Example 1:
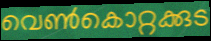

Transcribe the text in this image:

വെൺകൊറ്റക്കുട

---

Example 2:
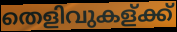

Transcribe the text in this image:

തെളിവുകള്ക്ക്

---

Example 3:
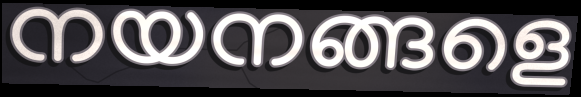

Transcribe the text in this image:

നയനങ്ങളെ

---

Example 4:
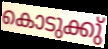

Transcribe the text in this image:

കൊടുക്കു്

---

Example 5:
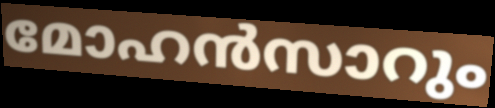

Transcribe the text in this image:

മോഹൻസാറും